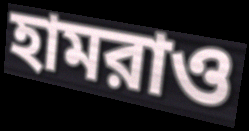
হামরাও